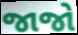
જાજો